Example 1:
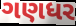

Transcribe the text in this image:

ગણધર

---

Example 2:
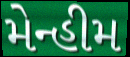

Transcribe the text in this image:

મેન્હીમ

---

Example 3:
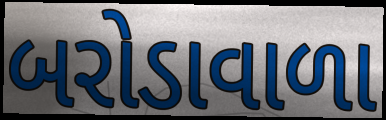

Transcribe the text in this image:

બરોડાવાળા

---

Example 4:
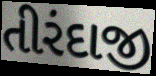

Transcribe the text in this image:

તીરંદાજી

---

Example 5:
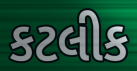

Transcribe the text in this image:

કટલીક